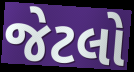
જેટલો